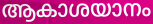
ആകാശയാനം